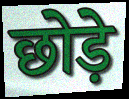
छोड़े